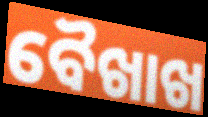
ବୈଖାଖ